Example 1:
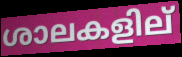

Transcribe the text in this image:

ശാലകളില്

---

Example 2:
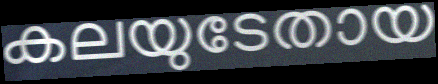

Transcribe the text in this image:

കലയുടേതായ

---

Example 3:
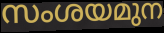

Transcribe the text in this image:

സംശയമുന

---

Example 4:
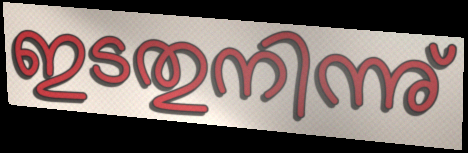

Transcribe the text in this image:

ഇടതുനിന്നു്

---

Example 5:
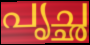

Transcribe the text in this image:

പൃച്ഛ